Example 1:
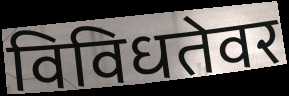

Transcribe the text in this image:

विविधतेवर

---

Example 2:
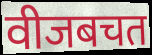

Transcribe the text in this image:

वीजबचत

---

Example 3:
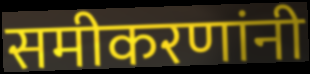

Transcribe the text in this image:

समीकरणांनी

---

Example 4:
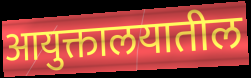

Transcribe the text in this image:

आयुक्तालयातील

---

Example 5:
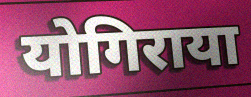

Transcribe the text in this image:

योगिराया